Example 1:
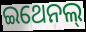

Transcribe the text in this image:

ଇଥେନଲ୍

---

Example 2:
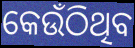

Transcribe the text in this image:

କେଉଁଠିଥିବ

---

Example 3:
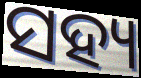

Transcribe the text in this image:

ସହ୍ୟ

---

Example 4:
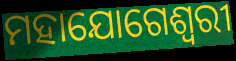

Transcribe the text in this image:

ମହାଯୋଗେଶ୍ୱରୀ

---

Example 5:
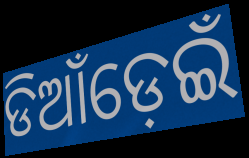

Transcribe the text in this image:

ଡିଆଁଡ଼େଇଁ